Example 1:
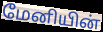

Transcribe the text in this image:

மேனியின்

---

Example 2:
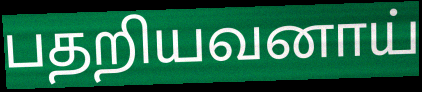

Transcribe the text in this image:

பதறியவனாய்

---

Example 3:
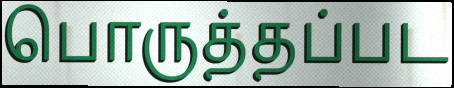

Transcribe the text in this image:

பொருத்தப்பட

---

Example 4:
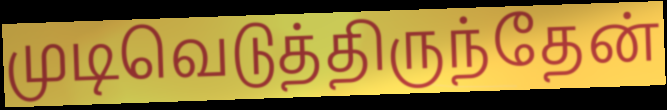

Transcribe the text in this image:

முடிவெடுத்திருந்தேன்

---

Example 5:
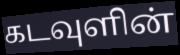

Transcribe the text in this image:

கடவுளின்